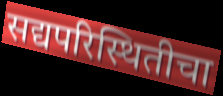
सद्यपरिस्थितीचा